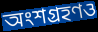
অংশগ্রহণও